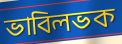
ভাবিলভক